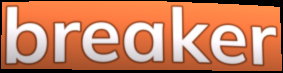
breaker